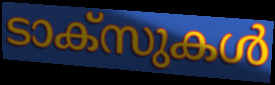
ടാക്സുകൾ